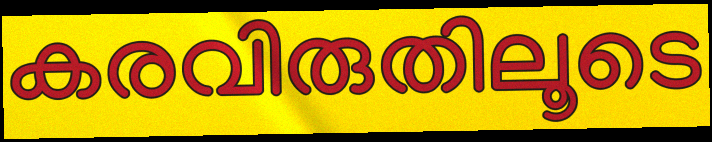
കരവിരുതിലൂടെ